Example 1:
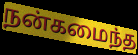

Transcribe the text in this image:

நன்கமைந்த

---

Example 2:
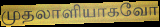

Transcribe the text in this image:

முதலாளியாகவோ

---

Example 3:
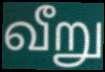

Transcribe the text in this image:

வீறு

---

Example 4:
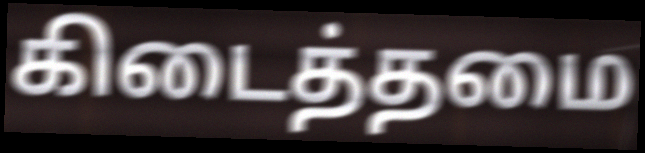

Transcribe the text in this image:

கிடைத்தமை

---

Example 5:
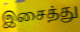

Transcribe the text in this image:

இசைத்து